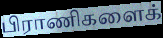
பிராணிகளைக்